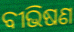
ବୀଭିଷଣ